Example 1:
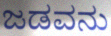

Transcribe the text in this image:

ಜಡವನು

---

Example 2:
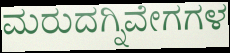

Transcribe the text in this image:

ಮರುದಗ್ನಿವೇಗಗಳ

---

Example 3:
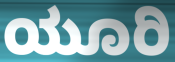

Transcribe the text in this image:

ಯೂರಿ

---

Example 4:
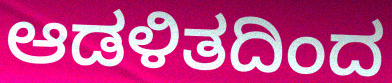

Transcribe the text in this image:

ಆಡಳಿತದಿಂದ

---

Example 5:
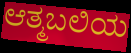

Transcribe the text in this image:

ಆತ್ಮಬಲಿಯ